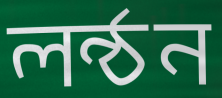
লন্ঠন